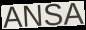
ANSA